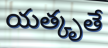
యత్కృతే